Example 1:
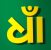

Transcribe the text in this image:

ଧାଁ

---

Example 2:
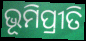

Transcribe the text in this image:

ଭୂମିପ୍ରୀତି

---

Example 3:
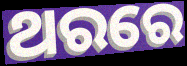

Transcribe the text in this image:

ଥରରେ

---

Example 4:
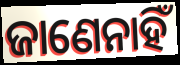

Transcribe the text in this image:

ଜାଣେନାହିଁ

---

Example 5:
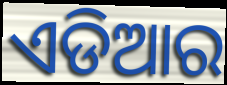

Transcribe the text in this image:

ଏଡିଆର